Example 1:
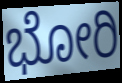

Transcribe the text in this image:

ಭೋರಿ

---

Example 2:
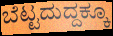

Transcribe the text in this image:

ಬೆಟ್ಟದುದ್ದಕ್ಕೂ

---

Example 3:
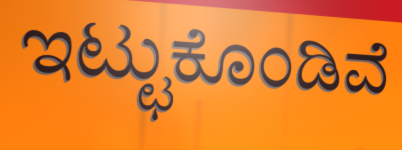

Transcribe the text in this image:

ಇಟ್ಟುಕೊಂಡಿವೆ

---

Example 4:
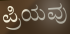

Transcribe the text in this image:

ಪ್ರಿಯವು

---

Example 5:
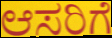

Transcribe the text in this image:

ಆಸರಿಗೆ